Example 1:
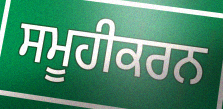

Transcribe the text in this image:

ਸਮੂਹੀਕਰਨ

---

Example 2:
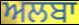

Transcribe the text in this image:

ਅਲਬਾ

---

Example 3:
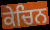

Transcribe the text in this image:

ਕੇਚਿਨ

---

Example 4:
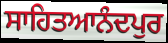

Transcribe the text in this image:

ਸਾਹਿਤਆਨੰਦਪੁਰ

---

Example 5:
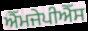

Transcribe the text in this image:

ਐੱਮਜੇਪੀਐੱਸ